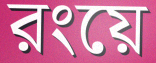
রংয়ে